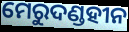
ମେରୁଦଣ୍ଡହୀନ